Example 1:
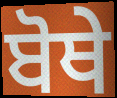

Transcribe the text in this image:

ਬੋਥੇ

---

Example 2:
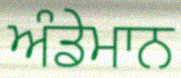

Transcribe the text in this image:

ਅੰਡੇਮਾਨ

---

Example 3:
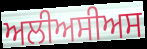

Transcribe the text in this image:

ਅਲੀਅਸੀਅਸ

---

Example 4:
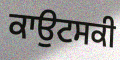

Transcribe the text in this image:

ਕਾਉਟਸਕੀ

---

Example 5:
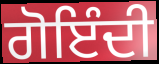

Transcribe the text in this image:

ਗੋਇੰਦੀ